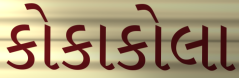
કોકાકોલા